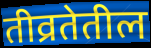
तीव्रतेतील